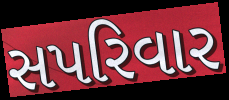
સપરિવાર